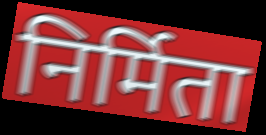
निर्मिता